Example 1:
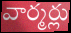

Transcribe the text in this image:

వార్మర్లు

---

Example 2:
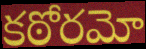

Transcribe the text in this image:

కఠోరమో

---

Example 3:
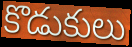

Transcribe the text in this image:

కొడుకులు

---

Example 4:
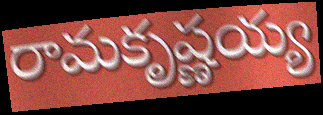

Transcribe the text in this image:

రామకృష్ణయ్య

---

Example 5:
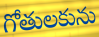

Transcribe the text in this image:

గోతులకును